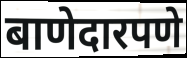
बाणेदारपणे